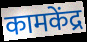
कामकेंद्र